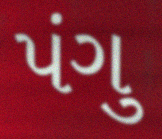
પંગુ